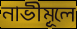
নাভীমূলে